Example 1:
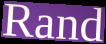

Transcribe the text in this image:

Rand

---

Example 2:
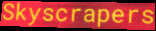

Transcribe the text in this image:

Skyscrapers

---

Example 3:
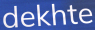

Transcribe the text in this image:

dekhte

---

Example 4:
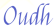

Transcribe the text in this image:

Oudh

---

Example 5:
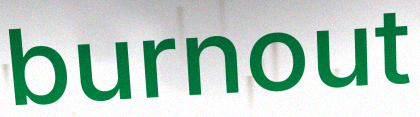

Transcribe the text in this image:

burnout